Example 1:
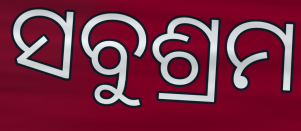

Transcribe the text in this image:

ସବୁଶ୍ରମ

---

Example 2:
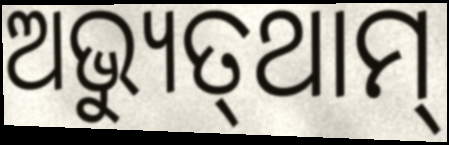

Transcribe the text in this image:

ଅଭ୍ୟୁତ୍‌ଥାମ୍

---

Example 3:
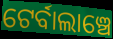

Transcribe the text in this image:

ଟେର୍ବାଲାଞ୍ଚେ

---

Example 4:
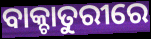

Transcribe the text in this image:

ବାକ୍ଚାତୁରୀରେ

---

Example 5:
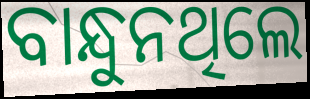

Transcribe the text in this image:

ବାନ୍ଧୁନଥିଲେ